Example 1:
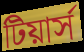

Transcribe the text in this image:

টিয়ার্স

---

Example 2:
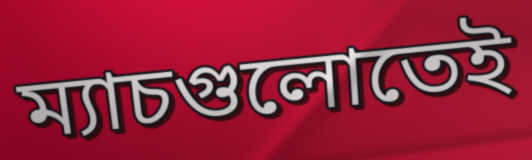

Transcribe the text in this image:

ম্যাচগুলোতেই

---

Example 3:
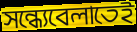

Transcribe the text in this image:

সন্ধ্যেবেলাতেই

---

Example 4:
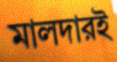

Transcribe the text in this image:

মালদারই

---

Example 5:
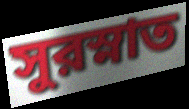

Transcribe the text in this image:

সুরস্নাত